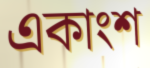
একাংশ